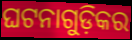
ଘଟନାଗୁଡ଼ିକର